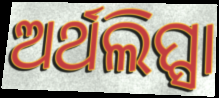
ଅର୍ଥଲିପ୍ସା